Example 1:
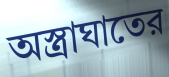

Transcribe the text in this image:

অস্ত্রাঘাতের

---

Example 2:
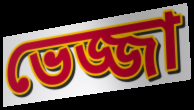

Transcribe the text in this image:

ভেজ্জা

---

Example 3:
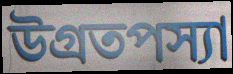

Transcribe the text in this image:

উগ্রতপস্যা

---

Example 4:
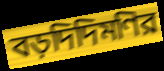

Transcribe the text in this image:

বড়দিদিমণির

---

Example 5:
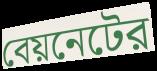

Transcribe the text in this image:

বেয়নেটের